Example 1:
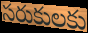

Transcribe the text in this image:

సరుకులకు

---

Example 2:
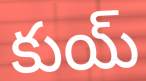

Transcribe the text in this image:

కుయ్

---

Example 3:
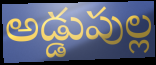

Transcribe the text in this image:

అడ్డుపుల్ల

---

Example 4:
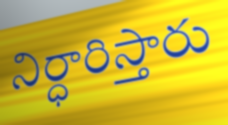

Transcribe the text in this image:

నిర్ధారిస్తారు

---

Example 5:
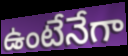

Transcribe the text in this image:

ఉంటేనేగా